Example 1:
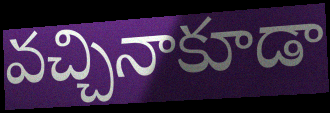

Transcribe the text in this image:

వచ్చినాకూడా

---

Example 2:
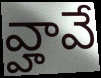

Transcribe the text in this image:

వ్హావే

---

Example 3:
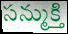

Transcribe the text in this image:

సన్ముక్తి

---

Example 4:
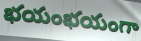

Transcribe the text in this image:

భయంభయంగా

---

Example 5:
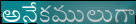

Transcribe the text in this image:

అనేకములుగా